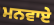
ਮਨਵਾਏ